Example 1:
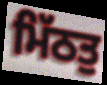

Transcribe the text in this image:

ਮਿੱਠਤੁ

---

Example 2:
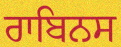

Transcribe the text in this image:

ਰਾਬਿਨਸ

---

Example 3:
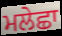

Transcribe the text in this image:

ਮਲੇਛਾ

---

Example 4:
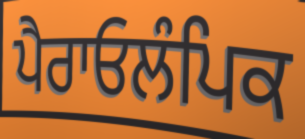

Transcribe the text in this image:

ਪੈਰਾਓਲੰਪਿਕ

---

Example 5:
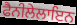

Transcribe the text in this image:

ਫੈਨੀਲੇਲਾਇਨ